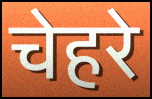
चेहरे